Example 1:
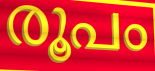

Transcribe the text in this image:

രൂപം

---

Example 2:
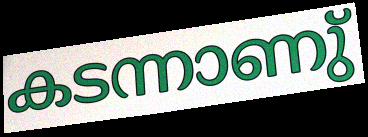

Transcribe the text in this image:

കടന്നാണു്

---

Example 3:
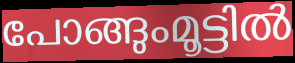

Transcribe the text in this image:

പോങ്ങുംമൂട്ടിൽ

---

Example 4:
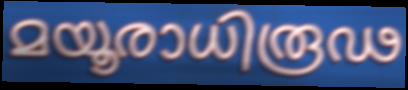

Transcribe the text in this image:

മയൂരാധിരൂഢ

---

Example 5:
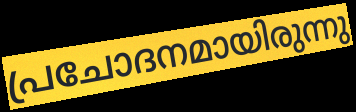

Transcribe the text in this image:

പ്രചോദനമായിരുന്നു